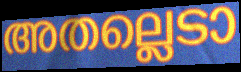
അതല്ലെടാ